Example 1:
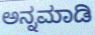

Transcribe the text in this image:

ಅನ್ನಮಾಡಿ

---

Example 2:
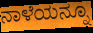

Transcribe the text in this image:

ನಾಳೆಯನ್ನೂ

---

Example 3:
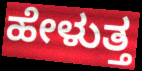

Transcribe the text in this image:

ಹೇಳುತ್ತ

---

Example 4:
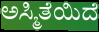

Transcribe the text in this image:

ಅಸ್ಮಿತೆಯಿದೆ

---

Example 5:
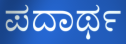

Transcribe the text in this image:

ಪದಾರ್ಥ